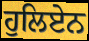
ਹੁਲਿਏਨ